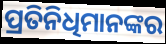
ପ୍ରତିନିଧିମାନଙ୍କର